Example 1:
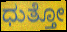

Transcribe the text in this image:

ಧುತ್ತೋ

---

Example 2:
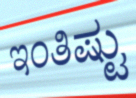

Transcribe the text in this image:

ಇಂತಿಷ್ಟು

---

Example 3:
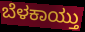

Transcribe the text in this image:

ಬೆಳಕಾಯ್ತು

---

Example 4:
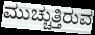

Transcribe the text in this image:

ಮುಚ್ಚುತ್ತಿರುವ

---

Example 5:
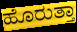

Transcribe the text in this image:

ಹೊರುತ್ತಾ